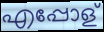
എപ്പോള്